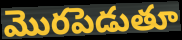
మొరపెడుతూ